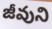
జీవుని